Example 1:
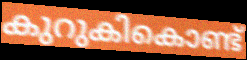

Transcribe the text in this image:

കുറുകികൊണ്ട്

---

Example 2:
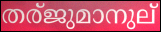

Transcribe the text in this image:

തര്ജുമാനുല്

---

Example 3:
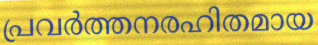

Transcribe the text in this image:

പ്രവർത്തനരഹിതമായ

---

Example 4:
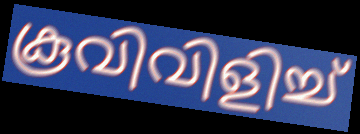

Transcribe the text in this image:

കൂവിവിളിച്ച്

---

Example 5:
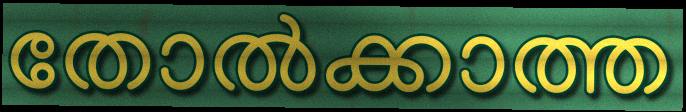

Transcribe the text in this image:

തോൽക്കാത്ത